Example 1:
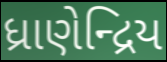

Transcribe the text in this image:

ધ્રાણેન્દ્રિય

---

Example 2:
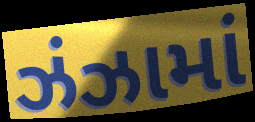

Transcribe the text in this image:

ઝંઝામાં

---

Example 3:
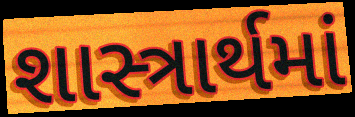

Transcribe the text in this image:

શાસ્ત્રાર્થમાં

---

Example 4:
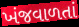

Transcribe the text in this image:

ખંજવાળતાં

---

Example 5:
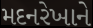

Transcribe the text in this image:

મદનરેખાને